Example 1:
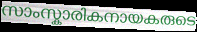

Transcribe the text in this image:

സാംസ്കാരികനായകരുടെ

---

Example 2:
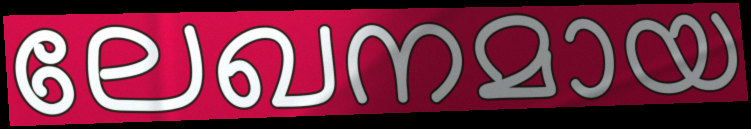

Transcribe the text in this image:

ലേഖനമായ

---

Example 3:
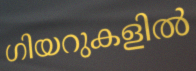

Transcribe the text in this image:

ഗിയറുകളിൽ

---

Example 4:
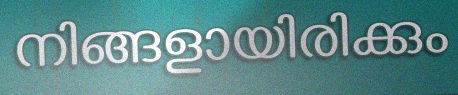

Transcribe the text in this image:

നിങ്ങളായിരിക്കും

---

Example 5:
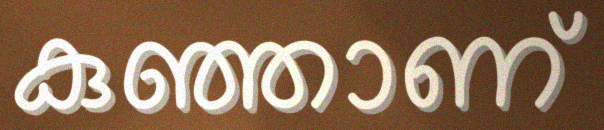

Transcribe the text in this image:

കുഞ്ഞാണ്